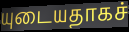
யுடையதாகச்